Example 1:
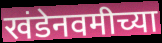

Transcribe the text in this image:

खंडेनवमीच्या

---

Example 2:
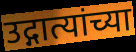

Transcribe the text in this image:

उद्गात्यांच्या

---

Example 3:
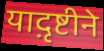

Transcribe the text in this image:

याद़ृष्टीने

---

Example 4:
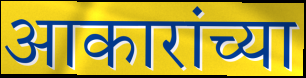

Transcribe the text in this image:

आकारांच्या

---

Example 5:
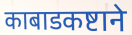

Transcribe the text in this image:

काबाडकष्टाने